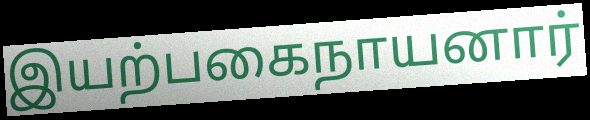
இயற்பகைநாயனார்